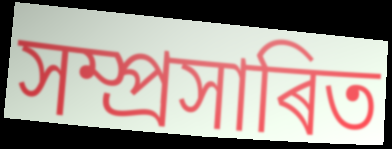
সম্প্ৰসাৰিত